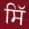
ਸਿੱ